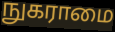
நுகராமை